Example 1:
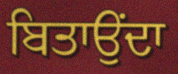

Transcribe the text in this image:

ਬਿਤਾਉਂਦਾ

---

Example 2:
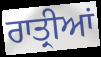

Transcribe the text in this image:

ਰਾਤ੍ਰੀਆਂ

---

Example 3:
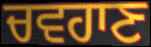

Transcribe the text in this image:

ਚਵਹਾਣ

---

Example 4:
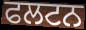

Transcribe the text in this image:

ਫਲਟਨ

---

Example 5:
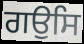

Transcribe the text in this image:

ਗਉਸਿ